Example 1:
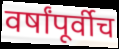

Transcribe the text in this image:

वर्षांपूर्वीच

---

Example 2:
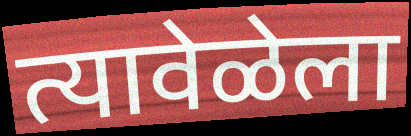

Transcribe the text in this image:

त्यावेळेला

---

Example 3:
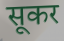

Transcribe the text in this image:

सूकर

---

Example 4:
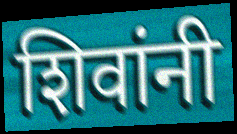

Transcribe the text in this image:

शिवांनी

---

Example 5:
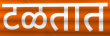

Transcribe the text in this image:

टळतात